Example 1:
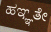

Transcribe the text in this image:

ಹಞ್ಞತೇ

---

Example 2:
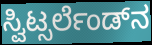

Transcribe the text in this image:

ಸ್ವಿಟ್ಸರ್ಲೆಂಡ್‌ನ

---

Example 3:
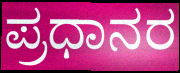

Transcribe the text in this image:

ಪ್ರಧಾನರ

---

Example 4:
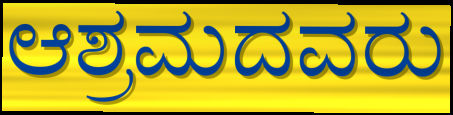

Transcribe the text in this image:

ಆಶ್ರಮದವರು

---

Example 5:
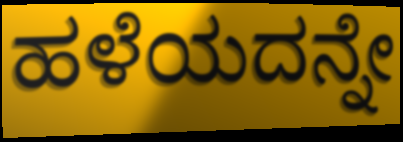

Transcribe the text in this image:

ಹಳೆಯದನ್ನೇ